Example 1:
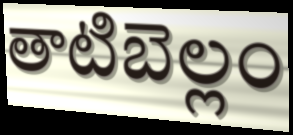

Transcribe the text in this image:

తాటిబెల్లం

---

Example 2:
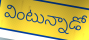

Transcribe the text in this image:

వింటున్నాడో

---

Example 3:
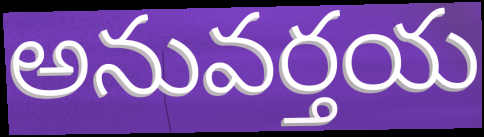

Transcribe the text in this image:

అనువర్తయ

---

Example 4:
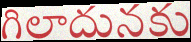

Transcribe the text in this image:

గిలాదునకు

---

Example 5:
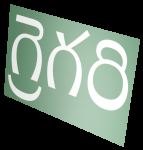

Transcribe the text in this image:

గ్రెగరి